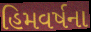
હિમવર્ષના